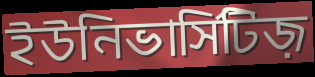
ইউনিভার্সিটিজ়